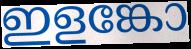
ഇളങ്കോ